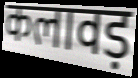
कलावड़